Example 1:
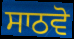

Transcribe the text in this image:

ਸਾਠਵੋ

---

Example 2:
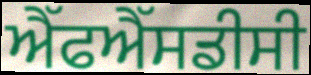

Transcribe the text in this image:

ਐੱਫਐੱਸਡੀਸੀ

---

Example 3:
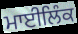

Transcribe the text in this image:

ਮਾਈਲਿੰਕ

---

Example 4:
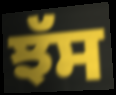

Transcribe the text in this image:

ਝੱਸ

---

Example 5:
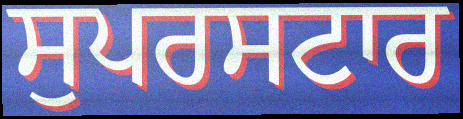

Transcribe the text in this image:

ਸੁਪਰਸਟਾਰ